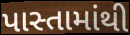
પાસ્તામાંથી